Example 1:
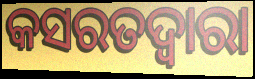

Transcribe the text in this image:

କସରତଦ୍ୱାରା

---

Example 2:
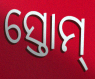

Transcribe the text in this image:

ସ୍ତୋମ୍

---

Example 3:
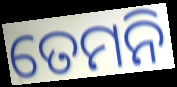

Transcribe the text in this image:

ତେମନି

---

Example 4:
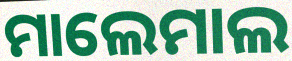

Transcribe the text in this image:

ମାଲେମାଲ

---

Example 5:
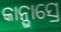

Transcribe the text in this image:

କାନ୍ଭାସ୍ରେ